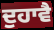
ਦੁਹਾਵੈ